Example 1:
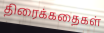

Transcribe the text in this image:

திரைக்கதைகள்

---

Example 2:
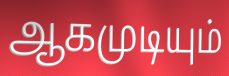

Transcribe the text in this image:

ஆகமுடியும்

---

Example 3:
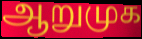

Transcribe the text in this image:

ஆறுமுக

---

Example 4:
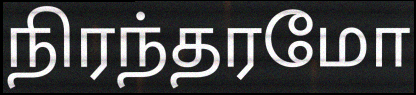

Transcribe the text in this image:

நிரந்தரமோ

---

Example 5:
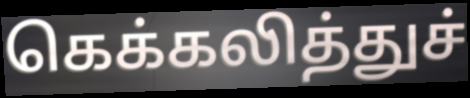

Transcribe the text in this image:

கெக்கலித்துச்